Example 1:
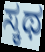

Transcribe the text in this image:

ಸ್ಕಥ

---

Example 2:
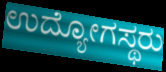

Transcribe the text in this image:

ಉದ್ಯೋಗಸ್ಥರು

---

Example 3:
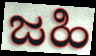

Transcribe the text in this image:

ಜಹಿ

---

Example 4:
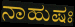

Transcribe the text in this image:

ನಾಹುಷಃ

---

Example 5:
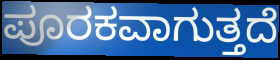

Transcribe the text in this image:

ಪೂರಕವಾಗುತ್ತದೆ